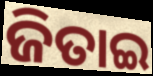
ଜିତାଇ